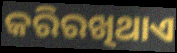
କରିରଖିଥାଏ